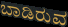
ಬಾಡಿರುವ